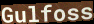
Gulfoss